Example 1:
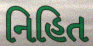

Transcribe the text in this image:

નિહિત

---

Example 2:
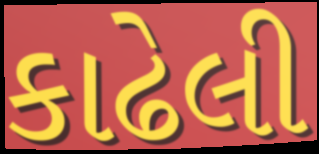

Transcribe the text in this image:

કાઢેલી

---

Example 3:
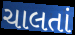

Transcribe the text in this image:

ચાલતાં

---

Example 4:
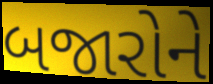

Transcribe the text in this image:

બજારોને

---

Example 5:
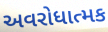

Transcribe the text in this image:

અવરોધાત્મક